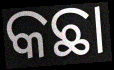
କଛା